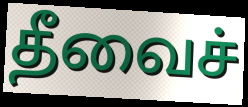
தீவைச்